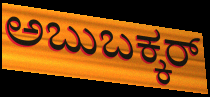
ಅಬುಬಕ್ಕರ್